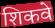
शिकवे